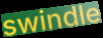
swindle